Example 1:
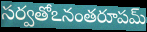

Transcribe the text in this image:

సర్వతోఽనంతరూపమ్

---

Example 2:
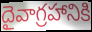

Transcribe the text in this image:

దైవాగ్రహానికి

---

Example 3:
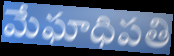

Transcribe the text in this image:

మేఘాధిపతి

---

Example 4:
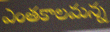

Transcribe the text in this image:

ఎంతకాలమన్న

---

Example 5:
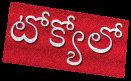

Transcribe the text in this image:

టోక్యోలో